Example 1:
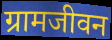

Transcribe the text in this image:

ग्रामजीवन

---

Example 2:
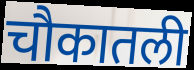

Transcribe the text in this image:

चौकातली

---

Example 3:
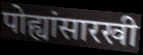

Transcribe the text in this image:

पोह्यांसारखी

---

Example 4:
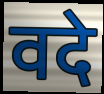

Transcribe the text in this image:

वदे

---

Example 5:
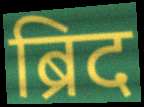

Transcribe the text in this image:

ब्रिद